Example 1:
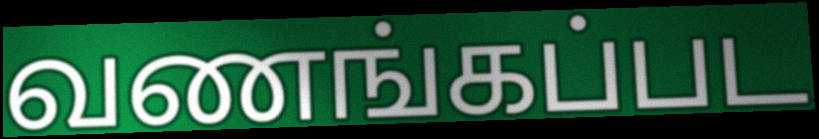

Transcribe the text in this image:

வணங்கப்பட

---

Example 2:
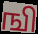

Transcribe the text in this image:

ஙி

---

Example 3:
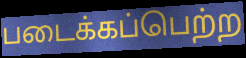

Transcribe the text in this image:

படைக்கப்பெற்ற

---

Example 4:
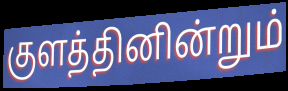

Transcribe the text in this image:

குளத்தினின்றும்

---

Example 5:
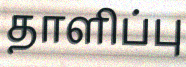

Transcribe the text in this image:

தாளிப்பு